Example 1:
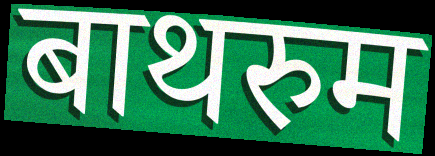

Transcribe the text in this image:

बाथरुम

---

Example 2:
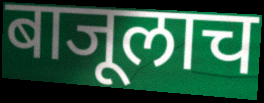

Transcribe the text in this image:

बाजूलाच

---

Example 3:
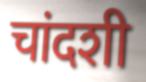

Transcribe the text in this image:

चांदशी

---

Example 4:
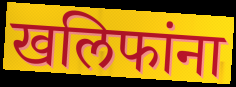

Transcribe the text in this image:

खलिफांना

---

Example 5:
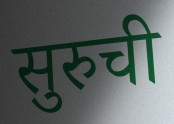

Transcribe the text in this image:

सुरुची